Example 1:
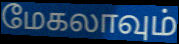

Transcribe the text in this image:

மேகலாவும்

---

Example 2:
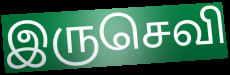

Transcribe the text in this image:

இருசெவி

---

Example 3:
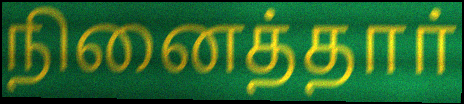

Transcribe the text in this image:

நினைத்தார்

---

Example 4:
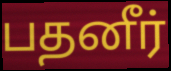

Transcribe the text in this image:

பதனீர்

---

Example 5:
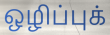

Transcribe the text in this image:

ஒழிப்புக்